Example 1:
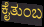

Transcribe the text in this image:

ಕೈತುಂಬ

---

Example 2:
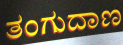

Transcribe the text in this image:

ತಂಗುದಾಣ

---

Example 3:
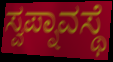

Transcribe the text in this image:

ಸ್ವಪ್ನಾವಸ್ಥೆ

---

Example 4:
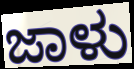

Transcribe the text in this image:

ಜಾಳು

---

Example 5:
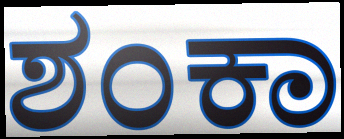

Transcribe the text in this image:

ಶಂಕಾ